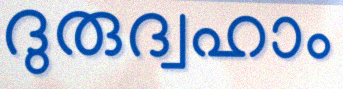
ദുരുദ്വഹാം